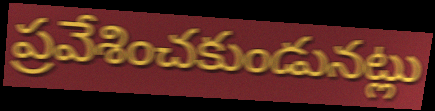
ప్రవేశించకుండునట్లు